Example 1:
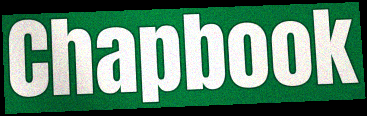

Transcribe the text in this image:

Chapbook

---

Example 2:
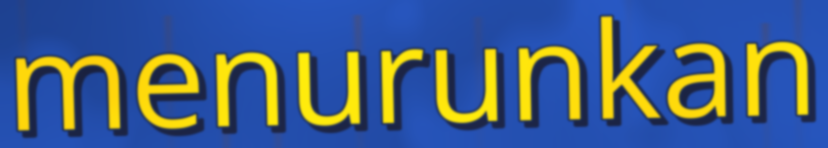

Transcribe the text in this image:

menurunkan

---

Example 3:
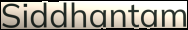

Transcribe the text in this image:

Siddhantam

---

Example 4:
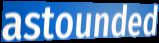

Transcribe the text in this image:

astounded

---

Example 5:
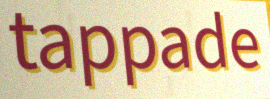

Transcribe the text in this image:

tappade